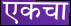
एकचा